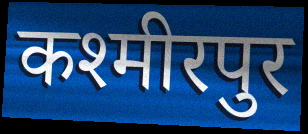
कश्मीरपुर